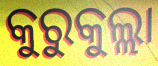
କୁରୁକୁଲ୍ଲା